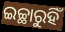
ଇଚ୍ଛାରୁହିଁ